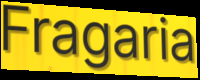
Fragaria